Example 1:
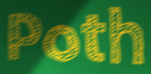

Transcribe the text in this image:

Poth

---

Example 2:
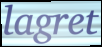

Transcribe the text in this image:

lagret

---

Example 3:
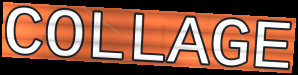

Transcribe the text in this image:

COLLAGE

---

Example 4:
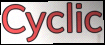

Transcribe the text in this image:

Cyclic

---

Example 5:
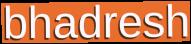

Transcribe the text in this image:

bhadresh